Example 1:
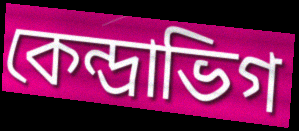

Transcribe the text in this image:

কেন্দ্রাভিগ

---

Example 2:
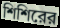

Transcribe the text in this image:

শিশিরের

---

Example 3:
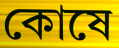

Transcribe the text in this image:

কোষে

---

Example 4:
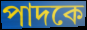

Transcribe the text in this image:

পাদকে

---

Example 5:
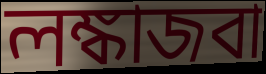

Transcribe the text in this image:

লঙ্কাজবা